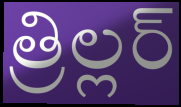
త్రిల్లర్